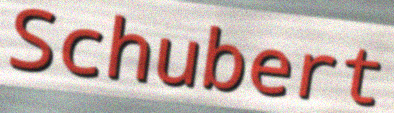
Schubert